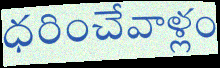
ధరించేవాళ్లం